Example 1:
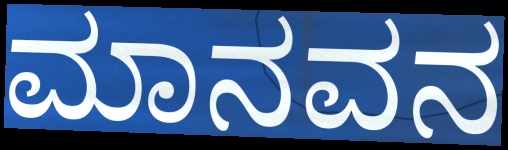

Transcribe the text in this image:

ಮಾನವನ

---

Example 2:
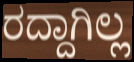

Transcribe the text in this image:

ರದ್ದಾಗಿಲ್ಲ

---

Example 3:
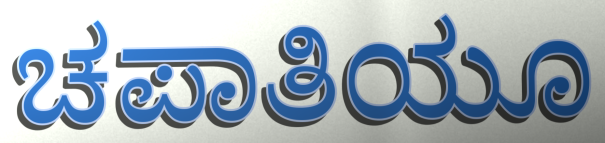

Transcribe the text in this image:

ಚಪಾತಿಯೂ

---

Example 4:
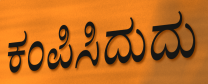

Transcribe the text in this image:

ಕಂಪಿಸಿದುದು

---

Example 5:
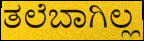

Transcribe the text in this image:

ತಲೆಬಾಗಿಲ್ಲ